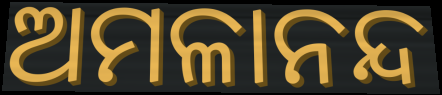
ଅମଳାନନ୍ଦ